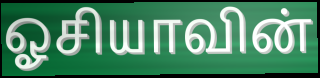
ஓசியாவின்